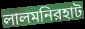
লালমনিরহাট